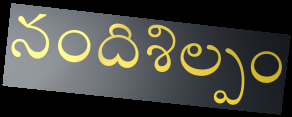
నందిశిల్పం